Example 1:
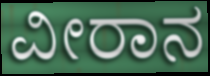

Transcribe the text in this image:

ವೀರಾನ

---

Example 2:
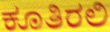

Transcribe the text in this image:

ಕೂತಿರಲಿ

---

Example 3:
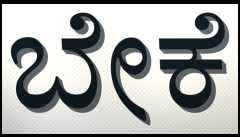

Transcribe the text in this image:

ಬೇಕೆ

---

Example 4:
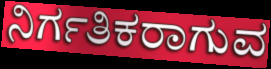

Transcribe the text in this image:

ನಿರ್ಗತಿಕರಾಗುವ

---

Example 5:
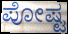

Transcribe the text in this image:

ಪೋಷ್ಟ